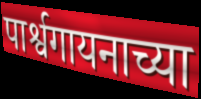
पार्श्वगायनाच्या